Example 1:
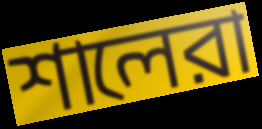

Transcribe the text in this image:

শালেরা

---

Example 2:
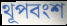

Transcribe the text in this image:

থূপবংশ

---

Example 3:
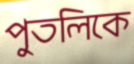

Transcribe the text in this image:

পুতলিকে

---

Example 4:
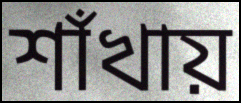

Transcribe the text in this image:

শাঁখায়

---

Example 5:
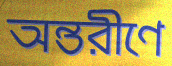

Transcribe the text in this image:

অন্তরীণে